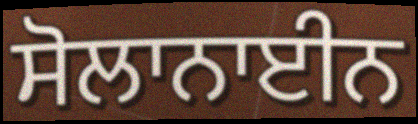
ਸੋਲਾਨਾਈਨ